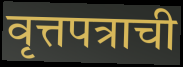
वृत्तपत्राची